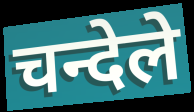
चन्देले